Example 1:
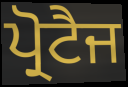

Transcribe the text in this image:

ਪ੍ਰੋਟੈਜ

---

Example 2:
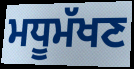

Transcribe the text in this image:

ਮਧੂਮੱਖਣ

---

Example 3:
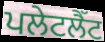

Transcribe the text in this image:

ਪਲੇਟਲੈੱਟ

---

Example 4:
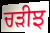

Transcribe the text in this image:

ਚੜੀਝ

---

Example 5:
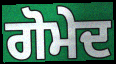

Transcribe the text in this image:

ਗੋਮੇਦ